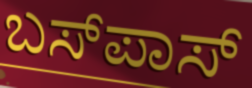
ಬಸ್‍ಪಾಸ್